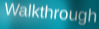
Walkthrough